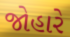
જોહારે